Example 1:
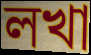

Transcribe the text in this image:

লখা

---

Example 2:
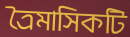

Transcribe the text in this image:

ত্রৈমাসিকটি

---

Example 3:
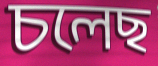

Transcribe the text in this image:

চলেছ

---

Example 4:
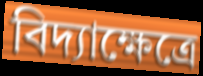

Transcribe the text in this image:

বিদ্যাক্ষেত্রে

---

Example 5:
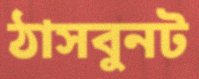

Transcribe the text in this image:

ঠাসবুনট